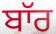
ਬਾੱਰ